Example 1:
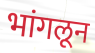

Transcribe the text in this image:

भांगलून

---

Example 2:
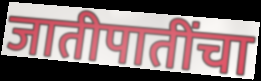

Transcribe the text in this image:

जातीपातींचा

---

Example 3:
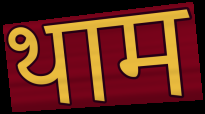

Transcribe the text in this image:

थाम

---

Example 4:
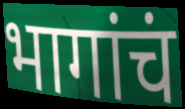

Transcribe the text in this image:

भागांचं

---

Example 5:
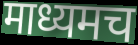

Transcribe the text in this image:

माध्यमच